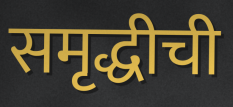
समृद्धीची